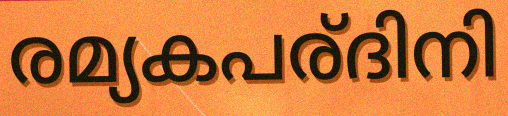
രമ്യകപര്ദിനി